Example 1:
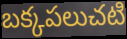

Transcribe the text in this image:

బక్కపలుచటి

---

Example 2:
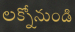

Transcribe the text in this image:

లక్నోనుండి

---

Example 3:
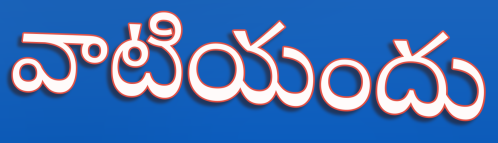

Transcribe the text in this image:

వాటియందు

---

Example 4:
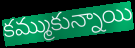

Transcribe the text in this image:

కమ్ముకున్నాయి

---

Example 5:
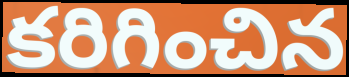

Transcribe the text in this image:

కరిగించిన